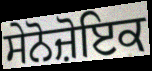
ਸੇਨੋਜ਼ੋਇਕ